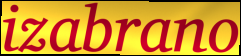
izabrano